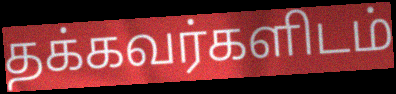
தக்கவர்களிடம்